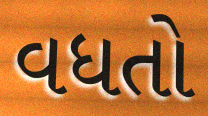
વધતો